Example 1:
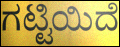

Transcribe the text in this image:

ಗಟ್ಟಿಯಿದೆ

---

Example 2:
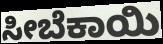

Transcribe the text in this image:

ಸೀಬೆಕಾಯಿ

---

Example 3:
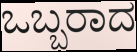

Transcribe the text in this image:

ಒಬ್ಬರಾದ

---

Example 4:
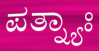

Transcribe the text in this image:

ಪತ್ನ್ಯಾಃ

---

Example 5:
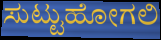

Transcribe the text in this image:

ಸುಟ್ಟುಹೋಗಲಿ